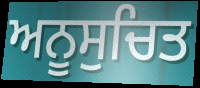
ਅਨੂਸੁਚਿਤ